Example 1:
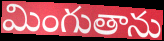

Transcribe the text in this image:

మింగుతాను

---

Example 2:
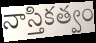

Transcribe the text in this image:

నాస్తికత్వం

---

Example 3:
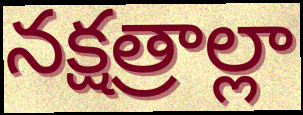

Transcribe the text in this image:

నక్షత్రాల్లా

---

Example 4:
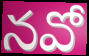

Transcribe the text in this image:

నవో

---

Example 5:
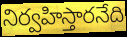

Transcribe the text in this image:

నిర్వహిస్తారనేది